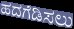
ಹದಗೆಡಿಸಲು